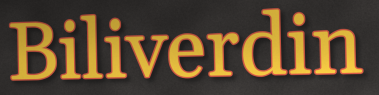
Biliverdin